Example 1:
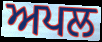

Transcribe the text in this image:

ਅਪਲ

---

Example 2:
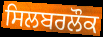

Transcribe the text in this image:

ਸਿਲਬਰਲੌਕ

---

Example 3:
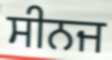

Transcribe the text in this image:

ਸੀਨਜ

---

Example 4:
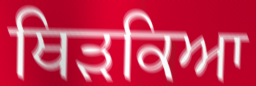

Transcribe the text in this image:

ਥਿੜਕਿਆ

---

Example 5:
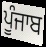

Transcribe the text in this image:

ਪੂੰਜਾਬ